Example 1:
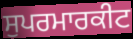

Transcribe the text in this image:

ਸੁਪਰਮਾਰਕੀਟ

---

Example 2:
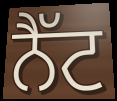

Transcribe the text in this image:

ਨੈੱਟ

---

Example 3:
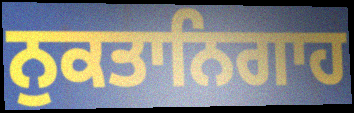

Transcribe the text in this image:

ਨੁਕਤਾਨਿਗਾਹ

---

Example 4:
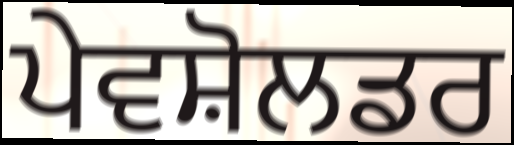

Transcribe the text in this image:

ਪੇਵਸ਼ੋਲਡਰ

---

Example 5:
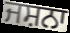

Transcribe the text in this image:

ਜਸ਼ਨਾ